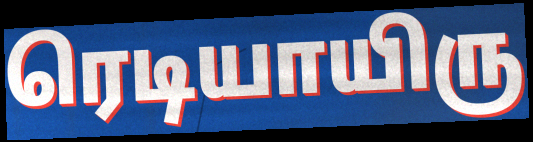
ரெடியாயிரு